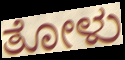
ತೋಳು